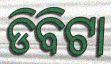
ଡିବିଟା